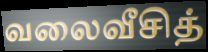
வலைவீசித்